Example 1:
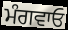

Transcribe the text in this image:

ਮੰਗਵਾਓ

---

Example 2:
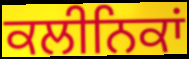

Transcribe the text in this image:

ਕਲੀਨਿਕਾਂ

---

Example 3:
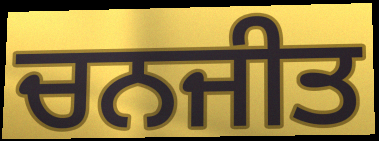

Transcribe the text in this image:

ਚਨਜੀਤ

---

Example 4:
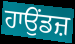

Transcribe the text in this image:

ਹਾਉਂਡਜ਼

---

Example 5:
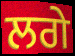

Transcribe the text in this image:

ਲਗੇ